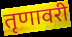
तृणावरी